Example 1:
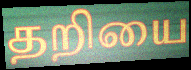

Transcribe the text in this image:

தறியை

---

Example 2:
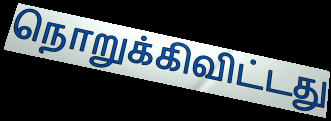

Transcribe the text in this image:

நொறுக்கிவிட்டது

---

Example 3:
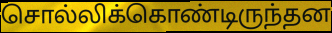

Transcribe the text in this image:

சொல்லிக்கொண்டிருந்தன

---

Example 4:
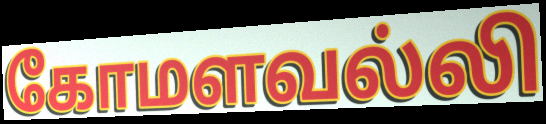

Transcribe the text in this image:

கோமளவல்லி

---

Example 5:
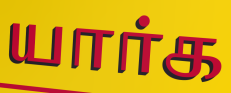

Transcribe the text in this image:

யார்க